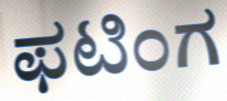
ಫಟಿಂಗ